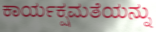
ಕಾರ್ಯಕ್ಷಮತೆಯನ್ನು